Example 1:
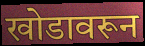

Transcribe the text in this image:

खोडावरून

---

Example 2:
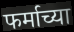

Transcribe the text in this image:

फर्माच्या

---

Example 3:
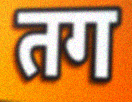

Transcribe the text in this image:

तग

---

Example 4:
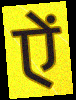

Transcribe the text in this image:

ऐं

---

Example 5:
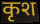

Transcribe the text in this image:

कृश